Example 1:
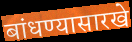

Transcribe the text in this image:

बांधण्यासारखे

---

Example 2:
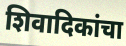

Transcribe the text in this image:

शिवादिकांचा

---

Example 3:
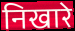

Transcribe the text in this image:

निखारे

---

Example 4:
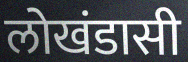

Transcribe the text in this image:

लोखंडासी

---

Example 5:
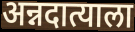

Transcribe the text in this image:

अन्नदात्याला